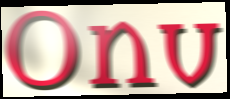
Onu